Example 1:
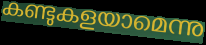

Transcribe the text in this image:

കണ്ടുകളയാമെന്നു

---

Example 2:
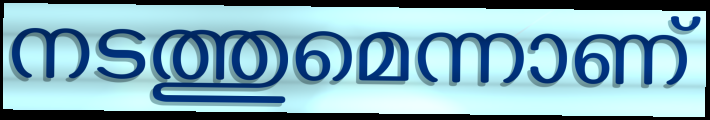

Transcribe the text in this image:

നടത്തുമെന്നാണ്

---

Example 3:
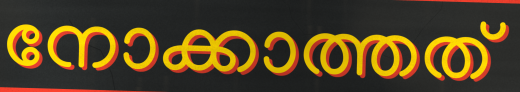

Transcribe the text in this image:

നോക്കാത്തത്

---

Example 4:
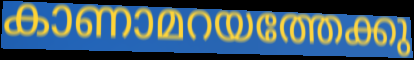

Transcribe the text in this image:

കാണാമറയത്തേക്കു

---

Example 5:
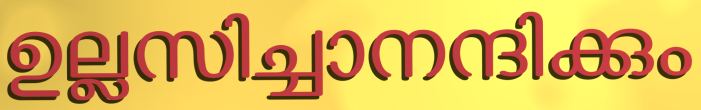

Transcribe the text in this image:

ഉല്ലസിച്ചാനന്ദിക്കും